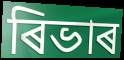
ৰিভাৰ